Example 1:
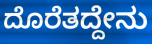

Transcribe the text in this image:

ದೊರೆತದ್ದೇನು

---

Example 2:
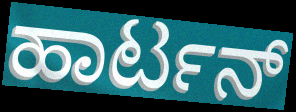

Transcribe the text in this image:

ಹಾರ್ಟನ್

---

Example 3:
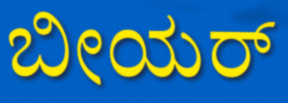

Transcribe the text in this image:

ಬೀಯರ್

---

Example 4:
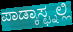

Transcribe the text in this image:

ಪಾಡ್ಕಾಸ್ಟ್ನಲ್ಲಿ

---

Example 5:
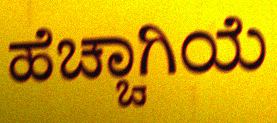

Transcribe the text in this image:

ಹೆಚ್ಚಾಗಿಯೆ